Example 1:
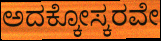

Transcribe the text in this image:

ಅದಕ್ಕೋಸ್ಕರವೇ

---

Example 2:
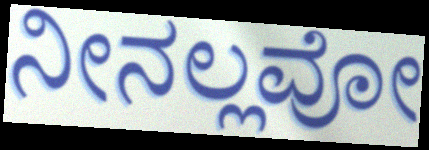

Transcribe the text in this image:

ನೀನಲ್ಲವೋ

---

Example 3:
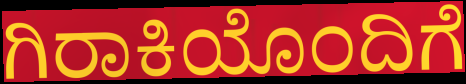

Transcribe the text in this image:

ಗಿರಾಕಿಯೊಂದಿಗೆ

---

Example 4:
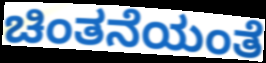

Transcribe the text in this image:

ಚಿಂತನೆಯಂತೆ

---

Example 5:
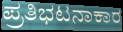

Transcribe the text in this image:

ಪ್ರತಿಭಟನಾಕಾರ